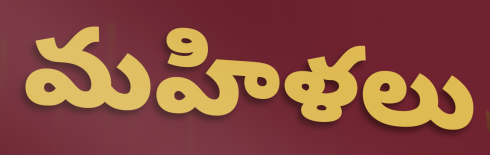
మహిళలు